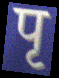
पृ